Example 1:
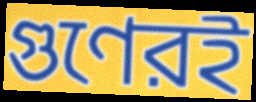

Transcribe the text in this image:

গুণেরই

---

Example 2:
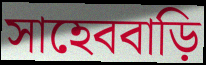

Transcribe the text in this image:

সাহেববাড়ি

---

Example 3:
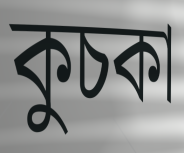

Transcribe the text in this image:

কুচকা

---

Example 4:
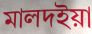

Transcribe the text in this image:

মালদইয়া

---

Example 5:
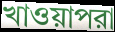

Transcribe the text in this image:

খাওয়াপরা